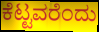
ಕೆಟ್ಟವರೆಂದು